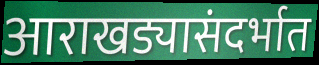
आराखड्यासंदर्भात